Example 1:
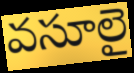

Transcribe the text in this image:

వసూలై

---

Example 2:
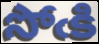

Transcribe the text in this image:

సోఁకి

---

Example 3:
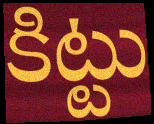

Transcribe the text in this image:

కిట్టు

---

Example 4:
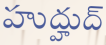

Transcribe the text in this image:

హుద్హుద్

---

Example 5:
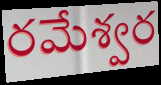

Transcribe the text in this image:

రమేశ్వర